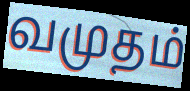
வமுதம்